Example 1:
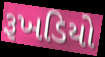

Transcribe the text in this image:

રૂખડિયો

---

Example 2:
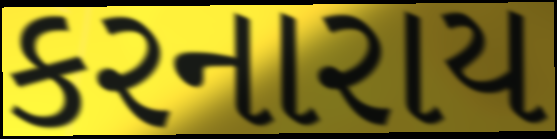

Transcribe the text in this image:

કરનારાય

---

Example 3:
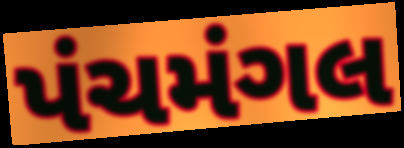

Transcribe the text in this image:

પંચમંગલ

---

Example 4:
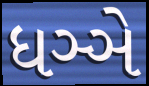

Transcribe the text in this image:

ધઞ્ઞે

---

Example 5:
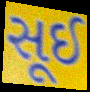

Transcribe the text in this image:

સૂઈ